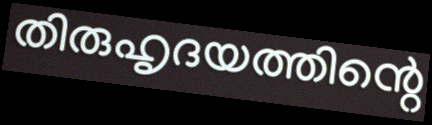
തിരുഹൃദയത്തിന്റെ